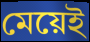
মেয়েই